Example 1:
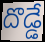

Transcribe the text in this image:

దొడ్డే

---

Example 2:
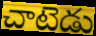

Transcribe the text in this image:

చాటెడు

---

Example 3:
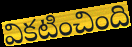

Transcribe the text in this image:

వికటించింది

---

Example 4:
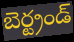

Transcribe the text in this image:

బెర్ట్రండ్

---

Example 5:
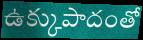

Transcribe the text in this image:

ఉక్కుపాదంతో